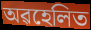
অৱহেলিত